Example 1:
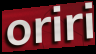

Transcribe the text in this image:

oriri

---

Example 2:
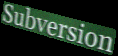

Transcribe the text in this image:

Subversion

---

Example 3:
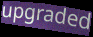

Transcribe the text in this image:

upgraded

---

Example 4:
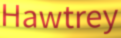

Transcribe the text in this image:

Hawtrey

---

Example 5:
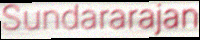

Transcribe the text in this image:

Sundararajan